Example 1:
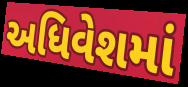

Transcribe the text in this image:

અધિવેશમાં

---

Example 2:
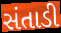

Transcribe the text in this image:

સંતાડી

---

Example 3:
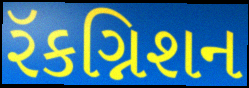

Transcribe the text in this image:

રૅકગ્નિશન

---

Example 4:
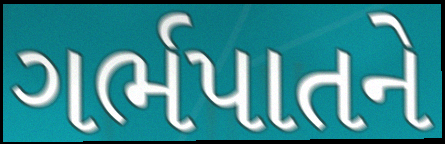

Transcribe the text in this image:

ગર્ભપાતને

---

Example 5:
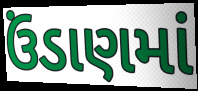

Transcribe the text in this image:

ઉંડાણમાં